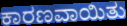
ಕಾರಣವಾಯಿತು